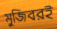
মুজিবরই